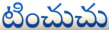
టించుచు